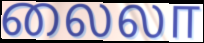
லைலா